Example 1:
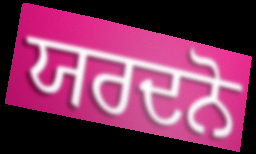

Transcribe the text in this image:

ਯਰਦਨੋ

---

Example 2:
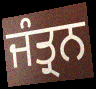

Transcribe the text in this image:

ਜੰਤ੍ਰਨ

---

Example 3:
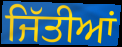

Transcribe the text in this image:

ਜਿੱਤੀਆਂ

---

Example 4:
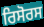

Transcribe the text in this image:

ਰਿਸੋਰਸ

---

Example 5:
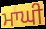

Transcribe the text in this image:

ਮਾਘੀ